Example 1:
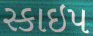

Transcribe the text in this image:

સ્કાઇપ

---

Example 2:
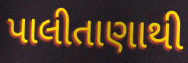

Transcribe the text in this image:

પાલીતાણાથી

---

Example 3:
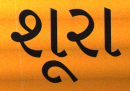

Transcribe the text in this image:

શૂરા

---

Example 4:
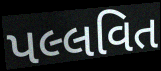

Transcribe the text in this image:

પલ્લવિત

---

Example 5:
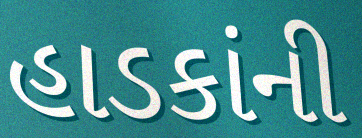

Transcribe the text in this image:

હાડકાંની